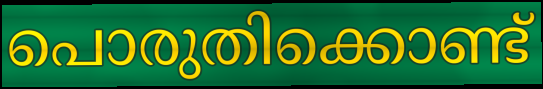
പൊരുതിക്കൊണ്ട്